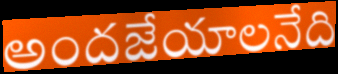
అందజేయాలనేది